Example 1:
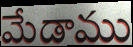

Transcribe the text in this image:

మేడాము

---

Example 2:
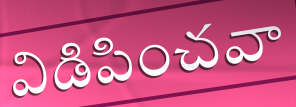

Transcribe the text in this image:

విడిపించవా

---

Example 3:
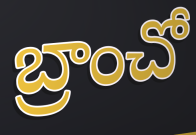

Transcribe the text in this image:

బ్రాంచో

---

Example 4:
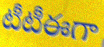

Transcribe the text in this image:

టీటీఈగా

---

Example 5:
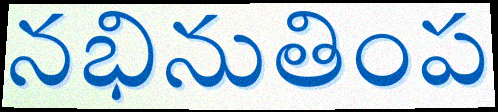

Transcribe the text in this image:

నభినుతింప